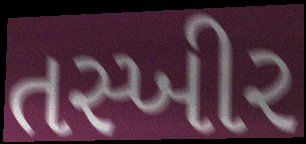
તસ્ખીર